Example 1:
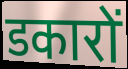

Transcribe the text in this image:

डकारों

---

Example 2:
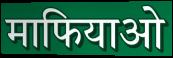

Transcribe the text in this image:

माफियाओ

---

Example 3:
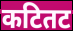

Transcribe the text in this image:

कटितट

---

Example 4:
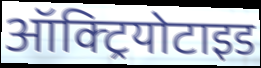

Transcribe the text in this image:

ऑक्ट्रियोटाइड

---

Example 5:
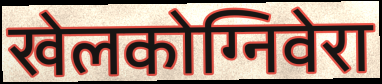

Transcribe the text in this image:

खेलकोग्निवेरा